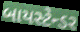
બાયસ્ટેન્ડર